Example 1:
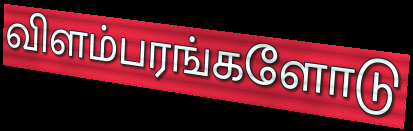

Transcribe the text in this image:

விளம்பரங்களோடு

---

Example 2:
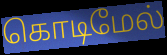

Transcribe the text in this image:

கொடிமேல்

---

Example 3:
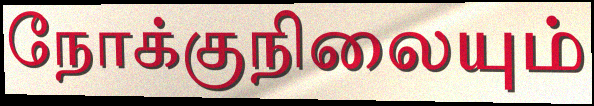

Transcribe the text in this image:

நோக்குநிலையும்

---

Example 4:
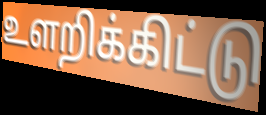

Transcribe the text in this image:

உளறிக்கிட்டு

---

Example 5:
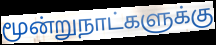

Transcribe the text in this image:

மூன்றுநாட்களுக்கு